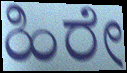
ಹಿರೇ